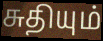
சுதியும்